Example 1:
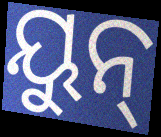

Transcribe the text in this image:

ୟୁନ୍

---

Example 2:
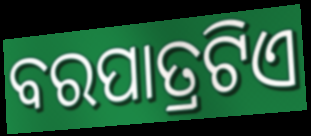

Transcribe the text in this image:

ବରପାତ୍ରଟିଏ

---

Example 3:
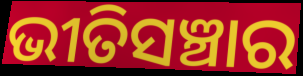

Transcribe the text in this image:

ଭୀତିସଞ୍ଚାର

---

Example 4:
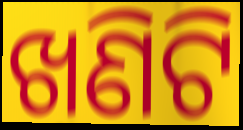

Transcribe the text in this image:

ଖଣିଟି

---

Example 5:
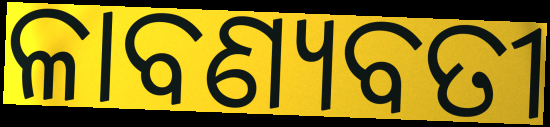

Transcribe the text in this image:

ଳାବଣ୍ୟବତୀ